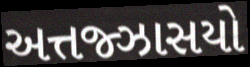
અત્તજ્ઝાસયો